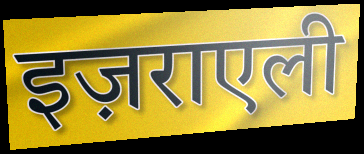
इज़राएली